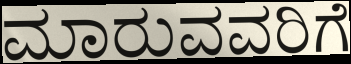
ಮಾರುವವರಿಗೆ